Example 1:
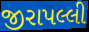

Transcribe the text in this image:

જીરાપલ્લી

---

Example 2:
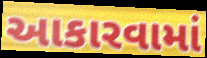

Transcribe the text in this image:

આકારવામાં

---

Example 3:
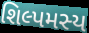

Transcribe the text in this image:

શિલ્પમસ્ય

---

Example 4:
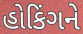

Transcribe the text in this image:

હોકિંગને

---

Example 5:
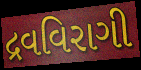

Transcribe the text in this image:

દ્રવવિરાગી